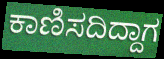
ಕಾಣಿಸದಿದ್ದಾಗ